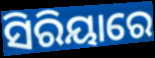
ସିରିୟାରେ